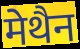
मेथैन